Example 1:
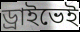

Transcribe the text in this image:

ড্রাইভেই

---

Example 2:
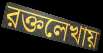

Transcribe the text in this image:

রক্তলেখায়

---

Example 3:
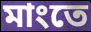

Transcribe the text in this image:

মাংতে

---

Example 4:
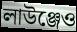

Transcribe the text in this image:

লাউঞ্জেও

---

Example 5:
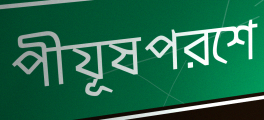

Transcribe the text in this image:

পীযূষপরশে